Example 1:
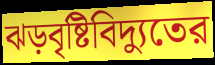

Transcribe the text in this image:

ঝড়বৃষ্টিবিদ্যুতের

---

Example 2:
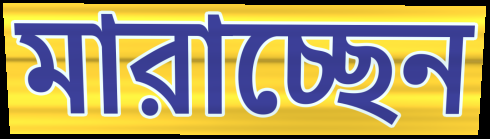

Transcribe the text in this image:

মারাচ্ছেন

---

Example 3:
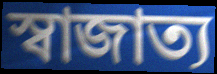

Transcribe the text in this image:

স্বাজাত্য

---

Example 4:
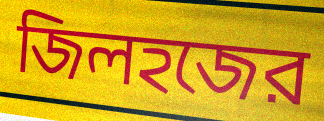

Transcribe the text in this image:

জিলহজের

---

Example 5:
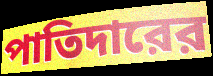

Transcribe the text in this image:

পাতিদারের